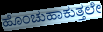
ಹೊಂಚುಹಾಕುತ್ತಲೇ